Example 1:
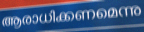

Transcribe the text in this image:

ആരാധിക്കണമെന്നു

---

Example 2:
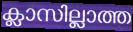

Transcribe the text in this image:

ക്ലാസില്ലാത്ത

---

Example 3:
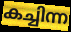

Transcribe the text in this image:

കച്ചിന്ന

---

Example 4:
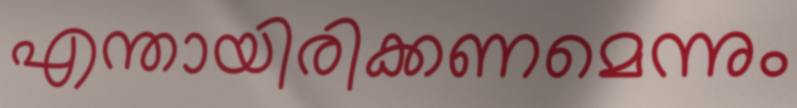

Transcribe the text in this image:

എന്തായിരിക്കണമെന്നും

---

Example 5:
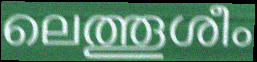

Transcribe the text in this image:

ലെത്തൂശീം